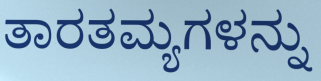
ತಾರತಮ್ಯಗಳನ್ನು